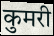
कुमरी